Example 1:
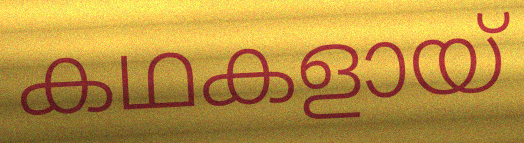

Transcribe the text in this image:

കഥകളായ്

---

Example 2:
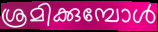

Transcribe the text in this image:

ശ്രമിക്കുമ്പോൾ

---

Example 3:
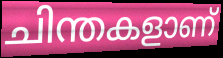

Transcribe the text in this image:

ചിന്തകളാണ്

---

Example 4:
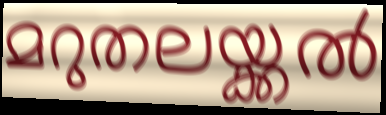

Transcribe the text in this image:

മറുതലയ്ക്കൽ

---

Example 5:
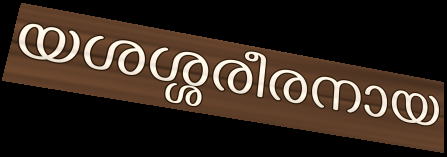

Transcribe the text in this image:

യശശ്ശരീരനായ